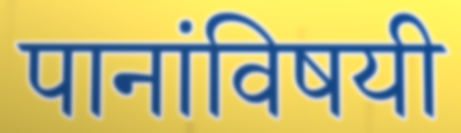
पानांविषयी